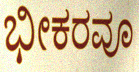
ಭೀಕರವೂ